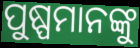
ପୁଷ୍ପମାନଙ୍କୁ